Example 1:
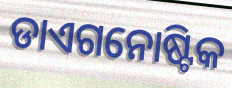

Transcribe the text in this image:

ଡାଏଗନୋଷ୍ଟିକ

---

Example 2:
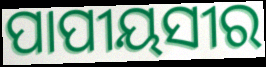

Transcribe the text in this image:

ପାପୀୟସୀର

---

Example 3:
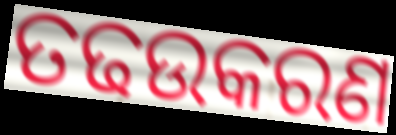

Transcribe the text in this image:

ତଢଉକରଣ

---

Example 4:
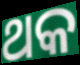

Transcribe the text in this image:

ଥକ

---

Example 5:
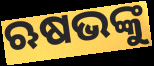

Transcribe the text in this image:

ଋଷଭଙ୍କୁ